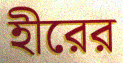
হীরের